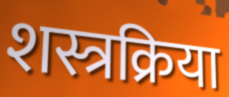
शस्त्रक्रिया